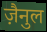
ज़ैनुल